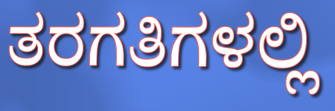
ತರಗತಿಗಳಲ್ಲಿ